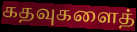
கதவுகளைத்